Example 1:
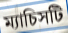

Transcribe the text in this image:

ম্যাচিসটি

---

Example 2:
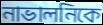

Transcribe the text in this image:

নাভালনিকে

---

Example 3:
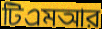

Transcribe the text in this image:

টিএমআর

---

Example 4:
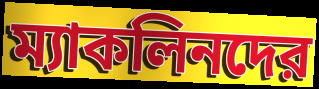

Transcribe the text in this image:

ম্যাকলিনদের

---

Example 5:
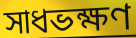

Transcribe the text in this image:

সাধভক্ষণ